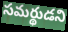
సమర్థుడని